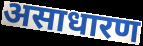
असाधारण